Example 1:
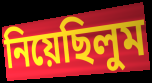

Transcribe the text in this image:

নিয়েছিলুম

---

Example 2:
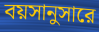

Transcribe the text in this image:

বয়সানুসারে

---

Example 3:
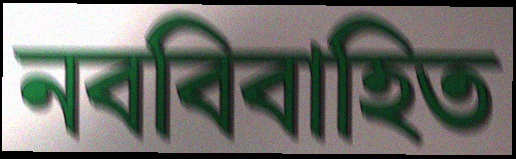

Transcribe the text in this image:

নববিবাহিত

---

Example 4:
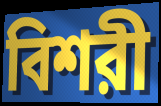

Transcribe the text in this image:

বিশরী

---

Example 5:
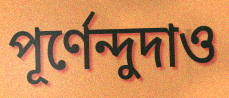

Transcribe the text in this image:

পূর্ণেন্দুদাও